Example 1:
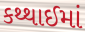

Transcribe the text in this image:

કથ્થાઈમાં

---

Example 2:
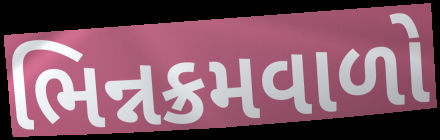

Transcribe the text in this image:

ભિન્નક્રમવાળો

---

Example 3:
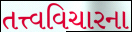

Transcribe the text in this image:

તત્ત્વવિચારના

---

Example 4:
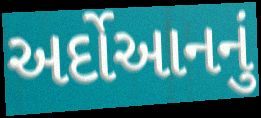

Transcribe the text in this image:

અર્દોઆનનું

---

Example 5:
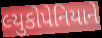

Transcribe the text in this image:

લ્યુકોપેનિયાને